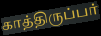
காத்திருப்பர்